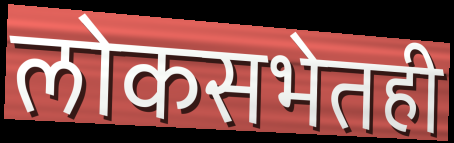
लोकसभेतही